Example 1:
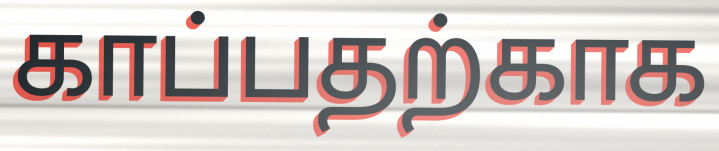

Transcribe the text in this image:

காப்பதற்காக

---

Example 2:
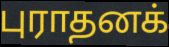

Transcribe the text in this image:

புராதனக்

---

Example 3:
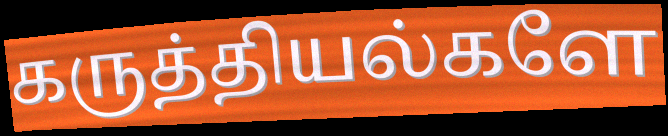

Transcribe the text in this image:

கருத்தியல்களே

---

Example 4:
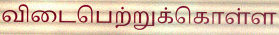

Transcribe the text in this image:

விடைபெற்றுக்கொள்ள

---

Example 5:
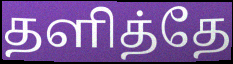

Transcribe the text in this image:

தளித்தே